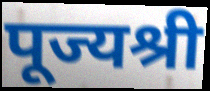
पूज्यश्री